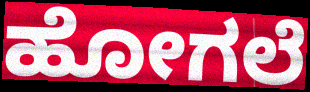
ಹೋಗಲೆ